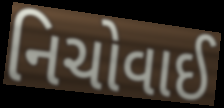
નિચોવાઈ